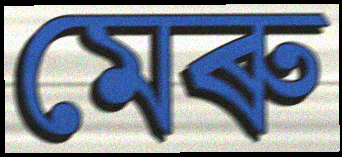
মেৰু